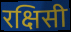
रक्षिसी